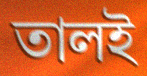
তালই